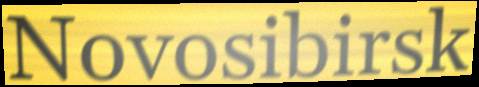
Novosibirsk